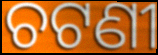
ଚଟଣୀ